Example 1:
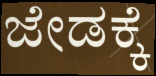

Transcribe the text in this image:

ಜೇಡಕ್ಕೆ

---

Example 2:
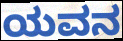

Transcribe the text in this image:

ಯವನ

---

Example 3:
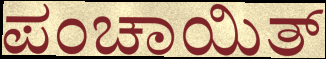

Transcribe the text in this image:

ಪಂಚಾಯಿತ್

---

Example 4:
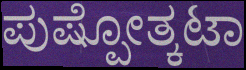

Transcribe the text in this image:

ಪುಷ್ಪೋತ್ಕಟಾ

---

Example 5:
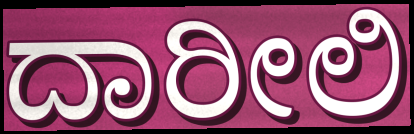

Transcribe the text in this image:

ದಾರೀಲಿ